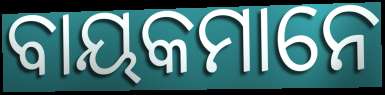
ବାୟକମାନେ